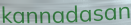
kannadasan